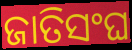
ଜାତିସଂଘ